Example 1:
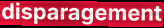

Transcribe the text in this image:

disparagement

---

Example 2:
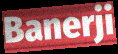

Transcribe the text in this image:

Banerji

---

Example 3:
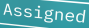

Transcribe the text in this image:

Assigned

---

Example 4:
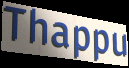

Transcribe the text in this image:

Thappu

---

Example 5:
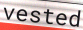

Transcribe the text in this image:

vested